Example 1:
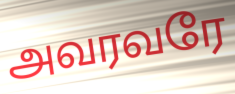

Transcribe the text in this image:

அவரவரே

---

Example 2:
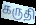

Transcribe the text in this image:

கருதி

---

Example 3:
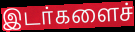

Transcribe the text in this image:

இடர்களைச்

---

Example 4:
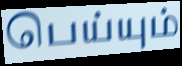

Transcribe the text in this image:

பெய்யும்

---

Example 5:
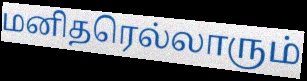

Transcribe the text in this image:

மனிதரெல்லாரும்